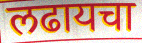
लढायचा